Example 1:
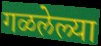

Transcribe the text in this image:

गळलेल्या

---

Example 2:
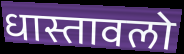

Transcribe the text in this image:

धास्तावलो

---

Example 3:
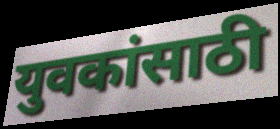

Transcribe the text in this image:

युवकांसाठी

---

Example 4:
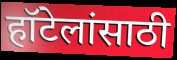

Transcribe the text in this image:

हॉटेलांसाठी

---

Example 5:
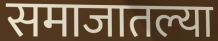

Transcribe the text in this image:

समाजातल्‍या